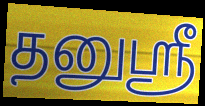
தனுஸ்ரீ